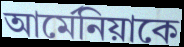
আর্মেনিয়াকে